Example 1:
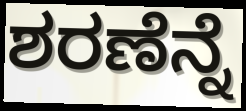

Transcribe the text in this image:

ಶರಣೆನ್ನೆ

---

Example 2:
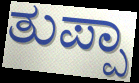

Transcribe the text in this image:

ತುಪ್ಪಾ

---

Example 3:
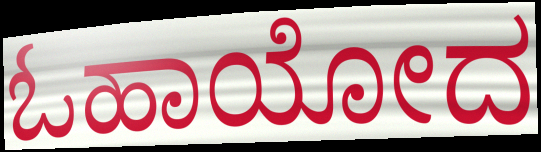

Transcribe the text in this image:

ಓಹಾಯೋದ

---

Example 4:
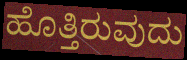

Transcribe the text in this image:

ಹೊತ್ತಿರುವುದು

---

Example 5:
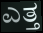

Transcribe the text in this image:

ಎತ್ತ